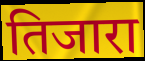
तिजारा